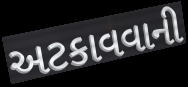
અટકાવવાની